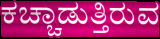
ಕಚ್ಚಾಡುತ್ತಿರುವ